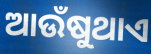
ଆଉଁଷୁଥାଏ